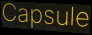
Capsule